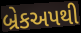
બ્રેકઅપથી